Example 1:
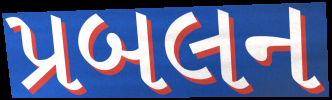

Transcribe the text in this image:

પ્રબલન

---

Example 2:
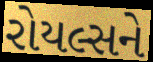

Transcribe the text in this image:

રોયલ્સને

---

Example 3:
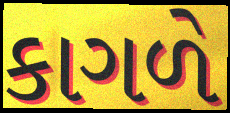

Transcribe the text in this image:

કાગળે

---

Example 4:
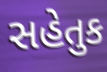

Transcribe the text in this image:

સહેતુક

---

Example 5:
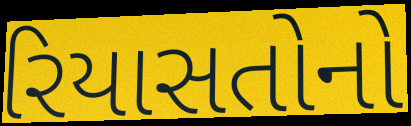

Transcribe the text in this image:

રિયાસતોનો